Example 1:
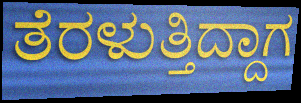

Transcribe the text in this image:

ತೆರಳುತ್ತಿದ್ದಾಗ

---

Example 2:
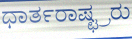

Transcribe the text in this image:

ಧಾರ್ತರಾಷ್ಟ್ರರು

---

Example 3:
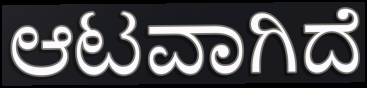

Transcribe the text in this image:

ಆಟವಾಗಿದೆ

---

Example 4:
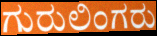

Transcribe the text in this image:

ಗುರುಲಿಂಗರು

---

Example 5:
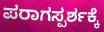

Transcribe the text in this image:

ಪರಾಗಸ್ಪರ್ಶಕ್ಕೆ